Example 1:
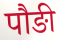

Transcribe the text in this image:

पौङी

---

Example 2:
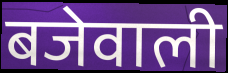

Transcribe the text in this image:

बजेवाली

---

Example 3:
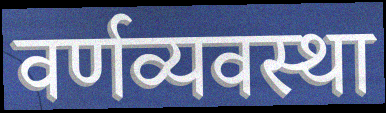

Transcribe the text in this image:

वर्णव्यवस्था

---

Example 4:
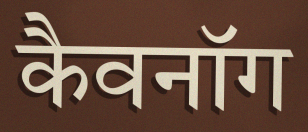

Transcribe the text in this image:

कैवनॉग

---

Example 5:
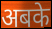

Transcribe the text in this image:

अबके